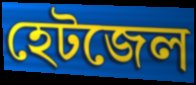
হেটজেল